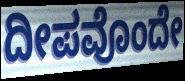
ದೀಪವೊಂದೇ